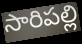
సారిపల్లి